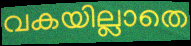
വകയില്ലാതെ